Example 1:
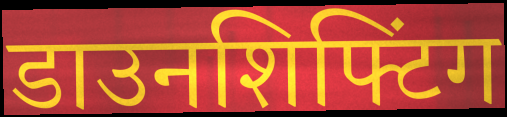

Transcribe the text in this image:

डाउनशिफ्टिंग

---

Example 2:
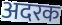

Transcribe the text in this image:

अदरक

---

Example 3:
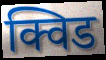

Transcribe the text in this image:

क्विड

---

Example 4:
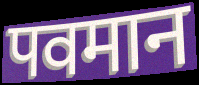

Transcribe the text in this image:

पवमान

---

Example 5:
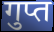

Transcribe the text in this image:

गुप्त